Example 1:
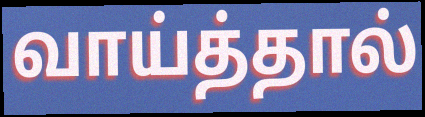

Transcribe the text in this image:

வாய்த்தால்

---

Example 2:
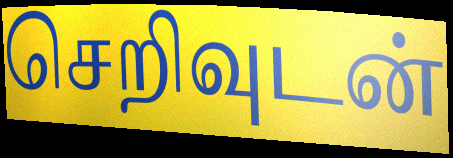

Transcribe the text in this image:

செறிவுடன்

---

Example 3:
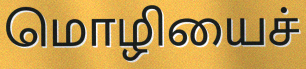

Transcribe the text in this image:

மொழியைச்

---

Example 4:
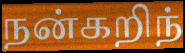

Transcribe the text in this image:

நன்கறிந்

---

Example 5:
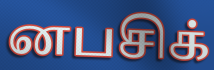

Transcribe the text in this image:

னபசிக்